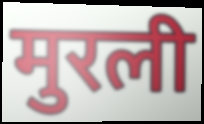
मुरली